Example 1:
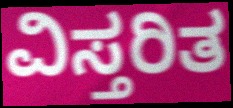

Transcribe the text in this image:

ವಿಸ್ತರಿತ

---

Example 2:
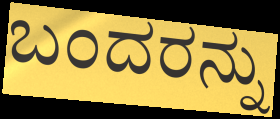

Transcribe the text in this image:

ಬಂದರನ್ನು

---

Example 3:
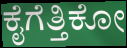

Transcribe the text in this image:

ಕೈಗೆತ್ತಿಕೋ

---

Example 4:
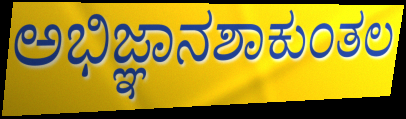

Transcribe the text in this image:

ಅಭಿಜ್ಞಾನಶಾಕುಂತಲ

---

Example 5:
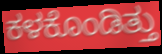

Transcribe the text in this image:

ಕಳಕೊಂಡಿತ್ತು